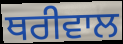
ਥਰੀਵਾਲ